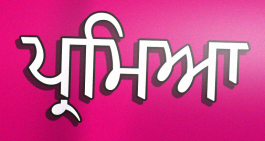
ਪ੍ਰਮਿਆ